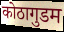
कोठागुडम